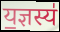
य॒ज्ञस्य॑